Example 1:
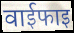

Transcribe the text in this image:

वाईफाइ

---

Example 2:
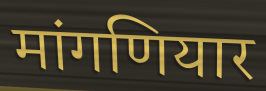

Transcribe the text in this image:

मांगणियार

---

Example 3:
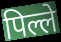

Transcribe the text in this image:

पिल्ले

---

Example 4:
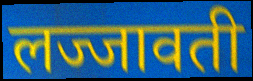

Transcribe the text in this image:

लज्जावती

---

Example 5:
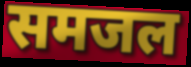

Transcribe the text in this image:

समजल